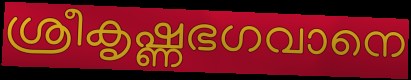
ശ്രീകൃഷ്ണഭഗവാനെ